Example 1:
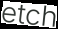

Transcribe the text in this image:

etch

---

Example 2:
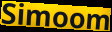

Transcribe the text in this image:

Simoom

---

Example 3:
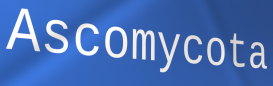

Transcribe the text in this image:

Ascomycota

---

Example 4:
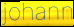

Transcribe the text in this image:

johann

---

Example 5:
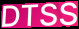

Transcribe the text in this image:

DTSS